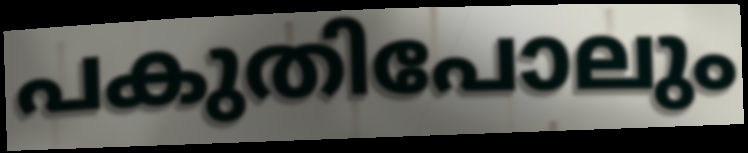
പകുതിപോലും